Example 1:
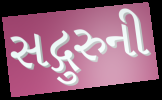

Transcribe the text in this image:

સદ્ગુરુની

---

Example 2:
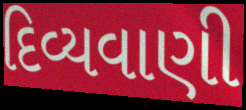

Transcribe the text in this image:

દિવ્યવાણી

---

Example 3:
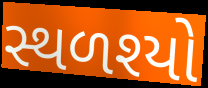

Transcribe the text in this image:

સ્થળશ્યો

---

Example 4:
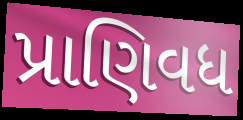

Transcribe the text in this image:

પ્રાણિવધ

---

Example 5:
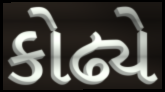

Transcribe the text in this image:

કોઢ્યે